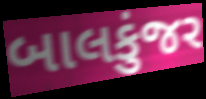
બાલકુંજર